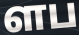
ளப